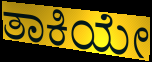
ತಾಕಿಯೇ